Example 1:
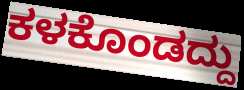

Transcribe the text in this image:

ಕಳಕೊಂಡದ್ದು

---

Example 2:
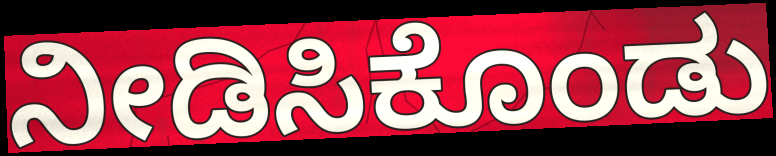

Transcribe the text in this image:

ನೀಡಿಸಿಕೊಂಡು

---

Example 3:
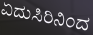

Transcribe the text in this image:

ಏದುಸಿರಿನಿಂದ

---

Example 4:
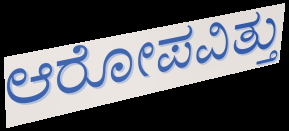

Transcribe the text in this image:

ಆರೋಪವಿತ್ತು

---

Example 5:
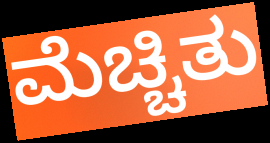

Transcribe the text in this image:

ಮೆಚ್ಚಿತು